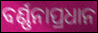
ବର୍ଣ୍ଣନାପ୍ରଧାନ